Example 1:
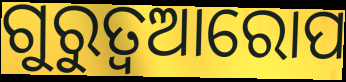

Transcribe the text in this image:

ଗୁରୁତ୍ଵଆରୋପ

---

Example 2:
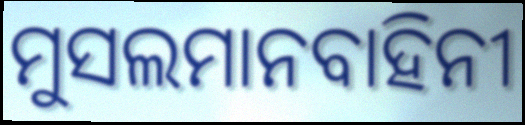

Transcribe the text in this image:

ମୁସଲମାନବାହିନୀ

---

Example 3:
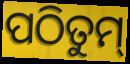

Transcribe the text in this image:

ପଠିତୁମ୍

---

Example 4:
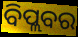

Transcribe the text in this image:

ବିପ୍ଲବର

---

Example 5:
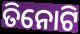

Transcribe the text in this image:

ତିନୋଟି